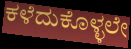
ಕಳೆದುಕೊಳ್ಳಲೇ